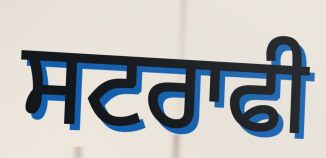
ਸਟਰਾਫੀ